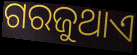
ଗରଜୁଥାଏ